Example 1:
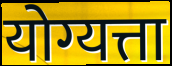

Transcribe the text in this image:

योग्यत्ता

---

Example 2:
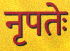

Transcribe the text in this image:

नृपतेः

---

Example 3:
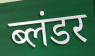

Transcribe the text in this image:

ब्लंडर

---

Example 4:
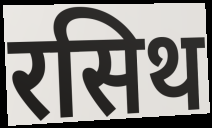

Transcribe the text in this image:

रसिथ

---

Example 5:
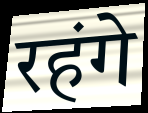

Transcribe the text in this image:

रहंगे